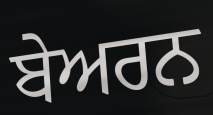
ਬੇਅਰਨ